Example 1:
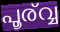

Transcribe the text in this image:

പൂര്വ്വ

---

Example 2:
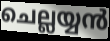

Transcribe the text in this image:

ചെല്ലയ്യൻ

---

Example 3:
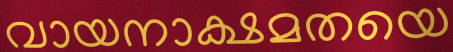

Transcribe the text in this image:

വായനാക്ഷമതയെ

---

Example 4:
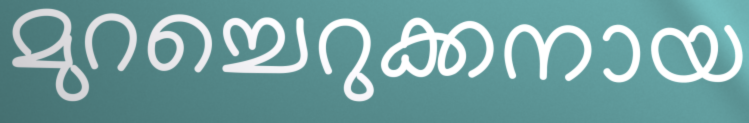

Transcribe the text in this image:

മുറച്ചെറുക്കനായ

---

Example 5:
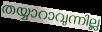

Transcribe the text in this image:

തയ്യാറാവുന്നില്ല